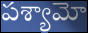
పశ్యామో